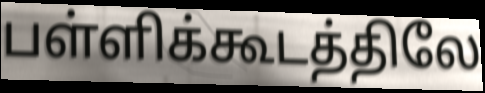
பள்ளிக்கூடத்திலே